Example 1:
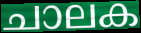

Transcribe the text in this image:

ചാലക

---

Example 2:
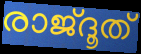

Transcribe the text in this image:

രാജ്ദൂത്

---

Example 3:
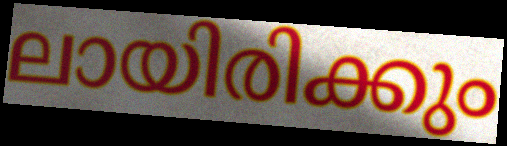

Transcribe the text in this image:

ലായിരിക്കും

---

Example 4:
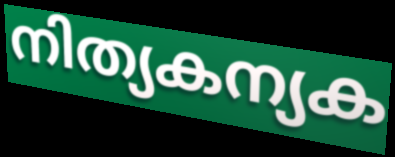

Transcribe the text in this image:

നിത്യകന്യക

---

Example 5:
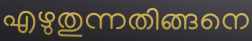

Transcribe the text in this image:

എഴുതുന്നതിങ്ങനെ